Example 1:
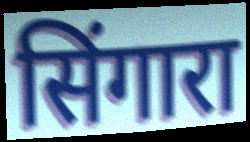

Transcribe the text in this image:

सिंगारा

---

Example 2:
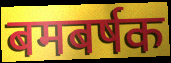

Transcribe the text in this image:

बमबर्षक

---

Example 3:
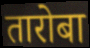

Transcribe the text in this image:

तारोबा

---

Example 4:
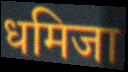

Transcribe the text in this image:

धमिजा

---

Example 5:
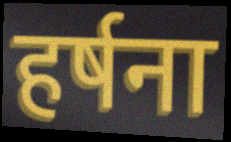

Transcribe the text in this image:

हर्षना